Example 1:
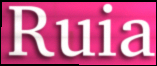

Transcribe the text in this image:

Ruia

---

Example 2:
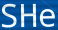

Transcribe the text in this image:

SHe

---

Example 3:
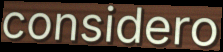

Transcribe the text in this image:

considero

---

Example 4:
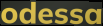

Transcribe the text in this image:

odessa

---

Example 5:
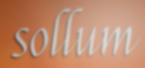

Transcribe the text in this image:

sollum